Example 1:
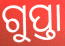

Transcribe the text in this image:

ଗୁପ୍ତା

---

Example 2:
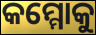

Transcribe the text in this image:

କମ୍ମୋକୁ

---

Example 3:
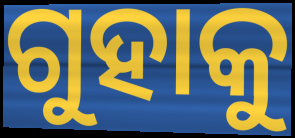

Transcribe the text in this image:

ଗୁହାକୁ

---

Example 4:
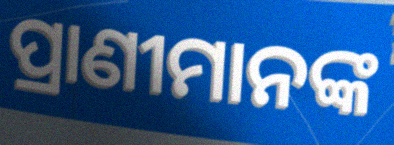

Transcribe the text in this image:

ପ୍ରାଣୀମାନଙ୍କ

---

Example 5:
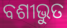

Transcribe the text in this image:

ବଶୀଭୁତ